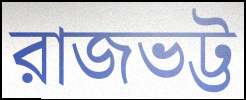
রাজভট্ট